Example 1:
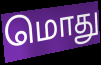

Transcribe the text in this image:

மொது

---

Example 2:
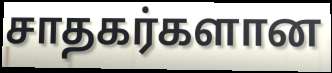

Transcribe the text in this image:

சாதகர்களான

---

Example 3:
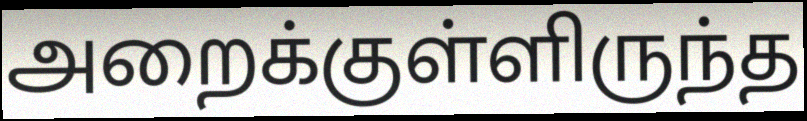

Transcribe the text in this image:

அறைக்குள்ளிருந்த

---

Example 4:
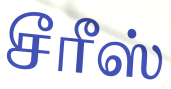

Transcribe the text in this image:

சீரீஸ்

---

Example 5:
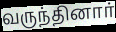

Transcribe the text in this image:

வருந்தினார்